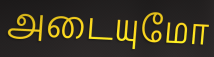
அடையுமோ